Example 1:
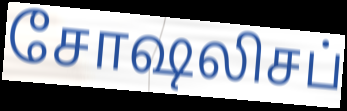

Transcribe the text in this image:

சோஷலிசப்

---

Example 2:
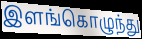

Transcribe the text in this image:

இளங்கொழுந்து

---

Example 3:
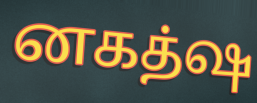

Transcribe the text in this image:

னகத்ஷ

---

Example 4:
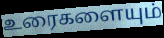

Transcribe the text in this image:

உரைகளையும்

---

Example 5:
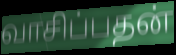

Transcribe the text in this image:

வாசிப்பதன்